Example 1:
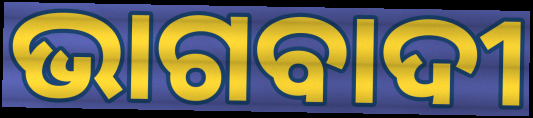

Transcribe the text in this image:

ଭାଗବାଦୀ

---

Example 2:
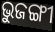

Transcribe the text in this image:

ଭୁଜଙ୍ଗୀ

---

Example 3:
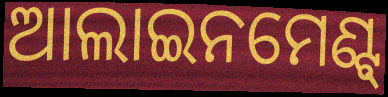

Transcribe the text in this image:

ଆଲାଇନମେଣ୍ଟ୍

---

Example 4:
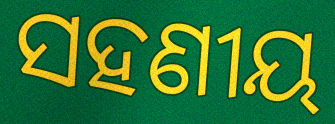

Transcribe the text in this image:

ସହଣୀୟ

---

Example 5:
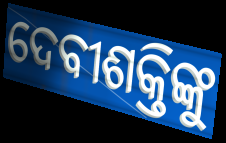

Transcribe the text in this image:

ଦେବୀଶକ୍ତିଙ୍କୁ